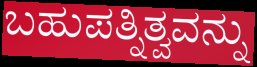
ಬಹುಪತ್ನಿತ್ವವನ್ನು